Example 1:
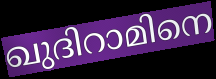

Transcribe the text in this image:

ഖുദിറാമിനെ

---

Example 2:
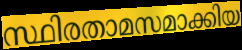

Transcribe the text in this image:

സ്ഥിരതാമസമാക്കിയ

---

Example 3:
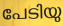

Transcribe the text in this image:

പേടിയു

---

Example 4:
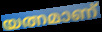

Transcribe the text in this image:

യത്നമാണ്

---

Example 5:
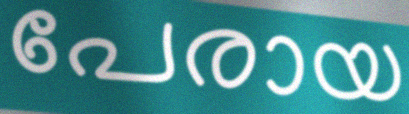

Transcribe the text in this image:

പേരായ